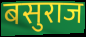
बसुराज